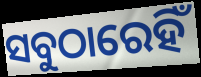
ସବୁଠାରେହିଁ